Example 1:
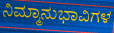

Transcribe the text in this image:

ನಿಮ್ಮಾನುಭಾವಿಗಳ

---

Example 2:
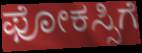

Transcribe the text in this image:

ಫೋಕಸ್ಸಿಗೆ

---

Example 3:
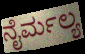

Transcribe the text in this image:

ನೈರ್ಮಲ್ಯ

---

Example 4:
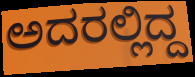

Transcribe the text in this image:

ಅದರಲ್ಲಿದ್ದ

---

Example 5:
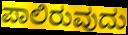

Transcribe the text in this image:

ಪಾಲಿರುವುದು